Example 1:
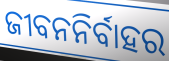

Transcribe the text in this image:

ଜୀବନନିର୍ବାହର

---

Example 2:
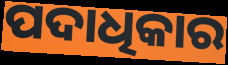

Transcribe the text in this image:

ପଦାଧିକାର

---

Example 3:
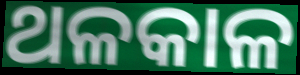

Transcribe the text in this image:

ଥଳକାଳ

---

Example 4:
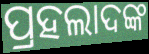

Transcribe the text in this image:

ପ୍ରହଲାଦଙ୍କ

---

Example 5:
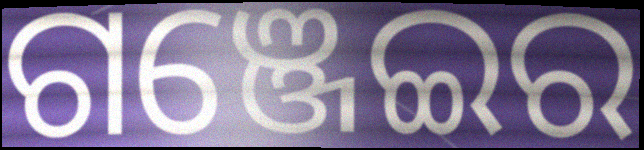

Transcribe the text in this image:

ଗଞ୍ଜେଇର